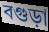
বগুড়া